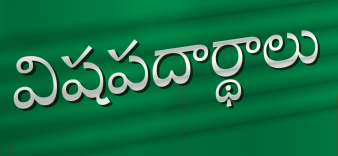
విషపదార్థాలు